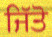
ਜਿੱਤੋ